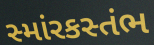
સ્માંરકસ્તંભ